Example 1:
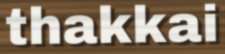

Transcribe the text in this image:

thakkai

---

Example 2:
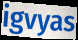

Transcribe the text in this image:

igvyas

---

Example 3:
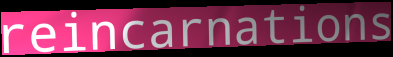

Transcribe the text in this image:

reincarnations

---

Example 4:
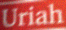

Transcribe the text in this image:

Uriah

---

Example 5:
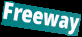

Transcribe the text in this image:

Freeway